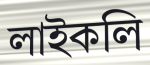
লাইকলি